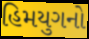
હિમયુગનો